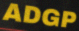
ADGP